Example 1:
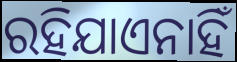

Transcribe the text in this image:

ରହିଯାଏନାହିଁ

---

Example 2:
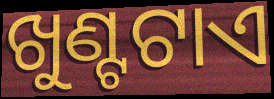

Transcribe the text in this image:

ଖୁଣ୍ଟଟାଏ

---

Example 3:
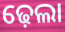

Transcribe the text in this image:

ଢ଼େଲା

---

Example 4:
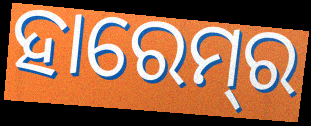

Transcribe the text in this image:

ହାରେମ୍‍ର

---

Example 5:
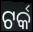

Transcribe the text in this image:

ଟର୍କ